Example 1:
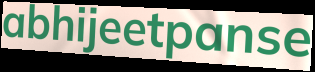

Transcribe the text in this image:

abhijeetpanse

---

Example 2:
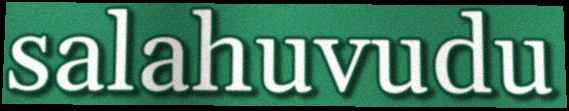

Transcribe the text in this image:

salahuvudu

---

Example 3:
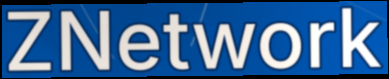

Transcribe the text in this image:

ZNetwork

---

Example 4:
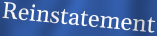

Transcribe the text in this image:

Reinstatement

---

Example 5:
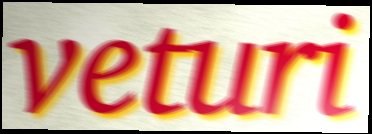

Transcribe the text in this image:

veturi